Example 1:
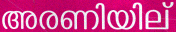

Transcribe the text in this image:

അരണിയില്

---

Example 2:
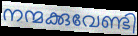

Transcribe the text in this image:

നന്മക്കുവേണ്ടി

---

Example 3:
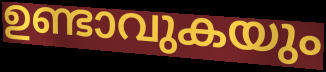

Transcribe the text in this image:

ഉണ്ടാവുകയും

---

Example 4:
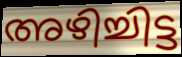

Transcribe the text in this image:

അഴിച്ചിട്ട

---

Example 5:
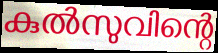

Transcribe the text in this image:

കുൽസുവിന്റെ